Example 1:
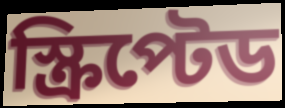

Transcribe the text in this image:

স্ক্রিপ্টেড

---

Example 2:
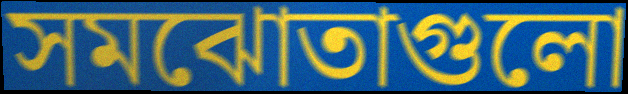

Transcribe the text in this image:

সমঝোতাগুলো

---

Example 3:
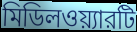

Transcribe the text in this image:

মিডিলওয়্যারটি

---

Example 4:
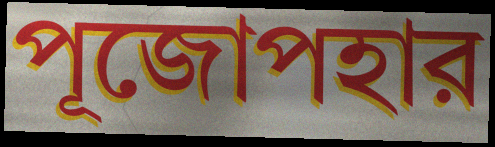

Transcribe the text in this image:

পূজোপহার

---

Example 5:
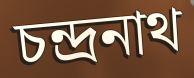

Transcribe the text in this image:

চন্দ্রনাথ